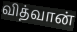
வித்வான்